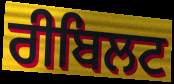
ਰੀਬਿਲਟ